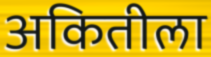
अकितीला